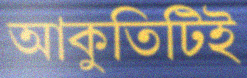
আকুতিটিই